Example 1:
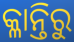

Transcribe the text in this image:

କ୍ଳାନ୍ତିରୁ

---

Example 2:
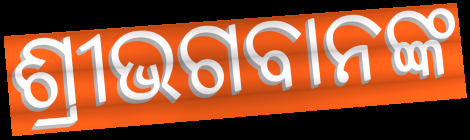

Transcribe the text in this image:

ଶ୍ରୀଭଗବାନଙ୍କ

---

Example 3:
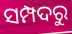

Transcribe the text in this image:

ସମ୍ପଦରୁ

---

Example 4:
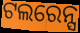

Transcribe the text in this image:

ଟଲରେନ୍ସ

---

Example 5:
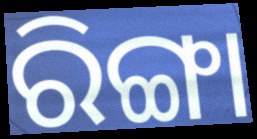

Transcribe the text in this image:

ରିଙ୍ଗା